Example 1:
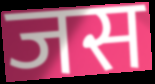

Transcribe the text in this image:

जस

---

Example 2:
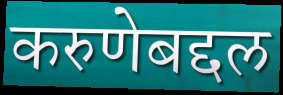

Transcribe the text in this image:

करुणेबद्दल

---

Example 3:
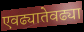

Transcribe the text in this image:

एवढ्यातेवढ्या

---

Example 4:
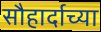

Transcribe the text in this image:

सौहार्दाच्या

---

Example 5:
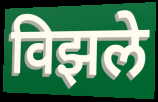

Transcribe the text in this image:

विझले